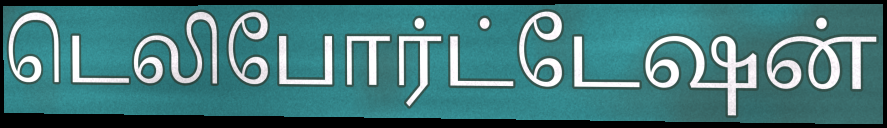
டெலிபோர்ட்டேஷன்